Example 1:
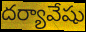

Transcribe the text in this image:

దర్యావేషు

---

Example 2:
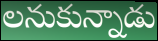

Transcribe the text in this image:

లనుకున్నాడు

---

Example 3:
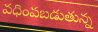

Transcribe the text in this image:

వధింపబడుతున్న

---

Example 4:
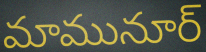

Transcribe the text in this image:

మామునూర్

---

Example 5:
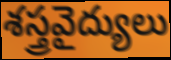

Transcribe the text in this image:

శస్త్రవైద్యులు